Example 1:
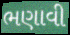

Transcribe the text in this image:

ભણાવી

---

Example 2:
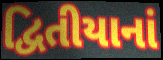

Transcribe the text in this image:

દ્વિતીયાનાં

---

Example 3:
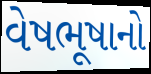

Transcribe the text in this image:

વેષભૂષાનો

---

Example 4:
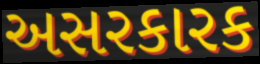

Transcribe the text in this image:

અસરકારક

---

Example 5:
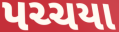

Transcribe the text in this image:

પચ્ચયા